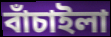
বাঁচাইলা